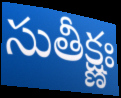
సుతీక్ష్ణః